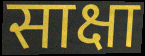
साक्षा